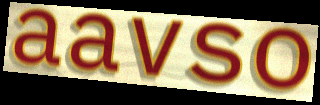
aavso